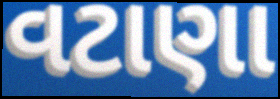
વટાણા